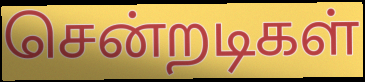
சென்றடிகள்